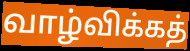
வாழ்விக்கத்